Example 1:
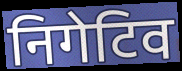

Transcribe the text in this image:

निगेटिव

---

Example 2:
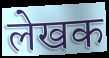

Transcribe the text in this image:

लेखक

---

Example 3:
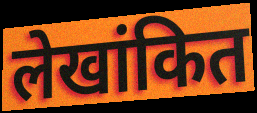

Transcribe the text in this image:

लेखांकित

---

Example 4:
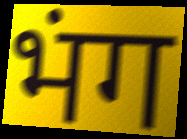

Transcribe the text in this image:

भंग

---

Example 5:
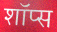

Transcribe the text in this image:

शॉप्स